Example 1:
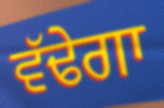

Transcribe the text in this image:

ਵੱਢੇਗਾ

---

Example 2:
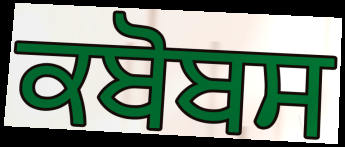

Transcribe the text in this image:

ਕਬੋਬਸ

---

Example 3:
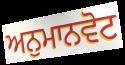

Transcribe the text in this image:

ਅਨੁਮਾਨਵੋਟ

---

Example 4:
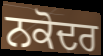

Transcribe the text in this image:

ਨਕੋਦਰ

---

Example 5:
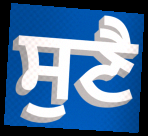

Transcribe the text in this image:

ਸੁਣੈ